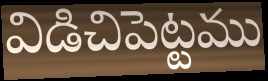
విడిచిపెట్టము